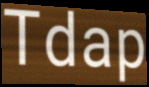
Tdap